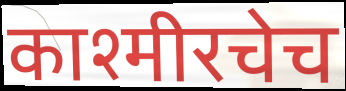
काश्मीरचेच